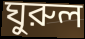
ঘুরুল